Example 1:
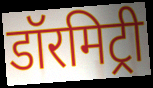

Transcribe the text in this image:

डॉरमिट्री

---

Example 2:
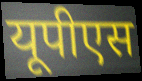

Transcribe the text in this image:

यूपीएस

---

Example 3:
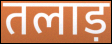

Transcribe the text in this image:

तलाड़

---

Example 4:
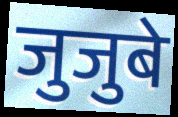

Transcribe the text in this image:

जुजुबे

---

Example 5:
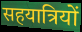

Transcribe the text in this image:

सहयात्रियों